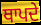
ਥਾਪਦੇ